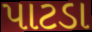
પાટડા